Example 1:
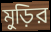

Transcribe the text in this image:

মুড়ির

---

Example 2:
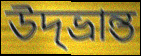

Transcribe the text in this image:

উদ্‌ভ্রান্ত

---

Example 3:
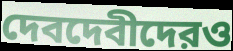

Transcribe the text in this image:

দেবদেবীদেরও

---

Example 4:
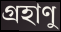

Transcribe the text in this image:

গ্রহাণু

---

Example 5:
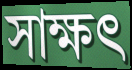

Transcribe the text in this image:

সাক্ষৎ